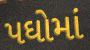
પઘોમાં